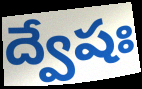
ద్వేషః